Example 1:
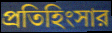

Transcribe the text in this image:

প্রতিহিংসার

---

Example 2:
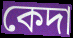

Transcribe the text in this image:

কেদা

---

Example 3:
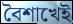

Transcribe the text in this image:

বৈশাখেই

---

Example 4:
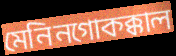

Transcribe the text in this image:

মেনিনগোকক্কাল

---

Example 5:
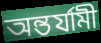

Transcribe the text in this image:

অন্তর্যামী